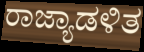
ರಾಜ್ಯಾಡಳಿತ